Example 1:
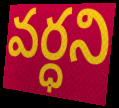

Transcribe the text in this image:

వర్ధని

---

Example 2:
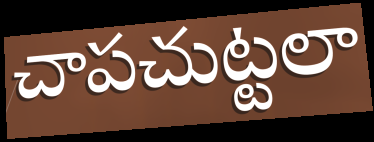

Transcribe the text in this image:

చాపచుట్టలా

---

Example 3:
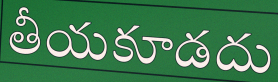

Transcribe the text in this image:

తీయకూడదు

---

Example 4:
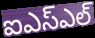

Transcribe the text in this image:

ఐఎస్ఎల్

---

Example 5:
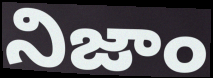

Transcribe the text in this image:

నిజాం